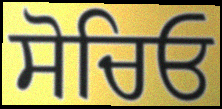
ਸੋਚਿਓ